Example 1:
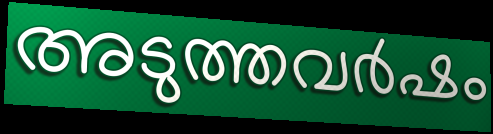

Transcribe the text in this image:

അടുത്തവർഷം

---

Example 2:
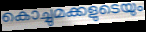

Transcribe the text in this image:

കൊച്ചുമക്കളുടെയും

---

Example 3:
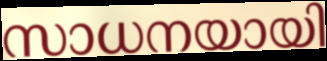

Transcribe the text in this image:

സാധനയായി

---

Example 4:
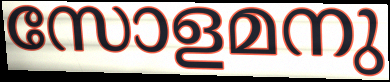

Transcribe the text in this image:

സോളമനു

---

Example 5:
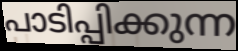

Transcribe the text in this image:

പാടിപ്പിക്കുന്ന